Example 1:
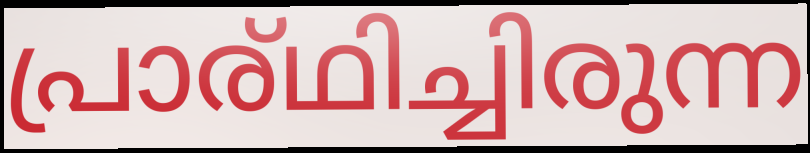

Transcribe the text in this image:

പ്രാര്ഥിച്ചിരുന്ന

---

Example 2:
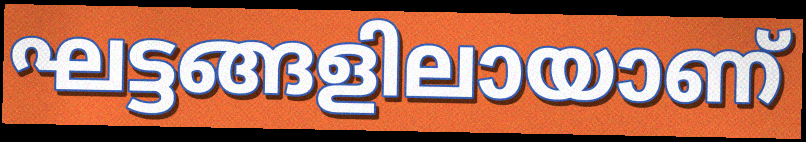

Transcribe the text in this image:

ഘട്ടങ്ങളിലായാണ്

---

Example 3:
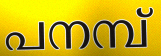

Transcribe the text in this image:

പനമ്പ്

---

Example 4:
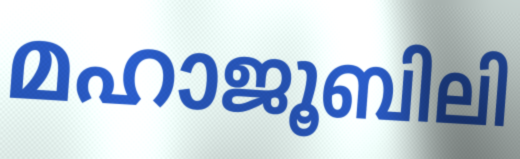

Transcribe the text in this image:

മഹാജൂബിലി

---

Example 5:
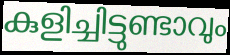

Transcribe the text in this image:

കുളിച്ചിട്ടുണ്ടാവും